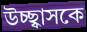
উচ্ছ্বাসকে